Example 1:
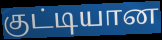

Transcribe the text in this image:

குட்டியான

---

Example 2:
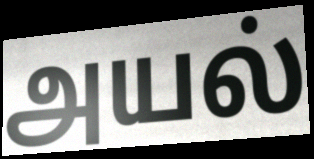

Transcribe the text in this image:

அயல்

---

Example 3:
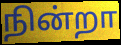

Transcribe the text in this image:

நின்றா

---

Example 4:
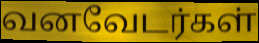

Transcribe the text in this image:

வனவேடர்கள்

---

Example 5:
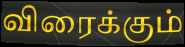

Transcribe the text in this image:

விரைக்கும்